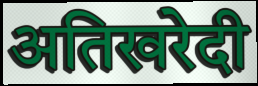
अतिखरेदी